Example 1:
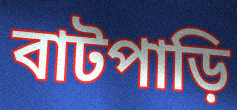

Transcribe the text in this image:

বাটপাড়ি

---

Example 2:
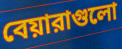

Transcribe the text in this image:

বেয়ারাগুলো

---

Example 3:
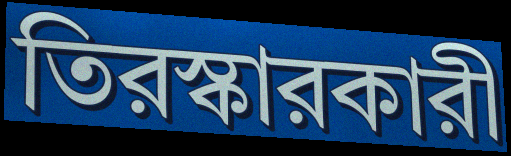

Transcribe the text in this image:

তিরস্কারকারী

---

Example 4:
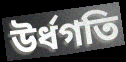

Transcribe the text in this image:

উর্ধগতি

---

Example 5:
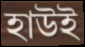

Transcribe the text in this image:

হাউই